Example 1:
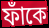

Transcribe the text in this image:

ফাঁকে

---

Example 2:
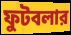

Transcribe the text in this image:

ফুটবলার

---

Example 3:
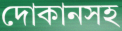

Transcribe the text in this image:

দোকানসহ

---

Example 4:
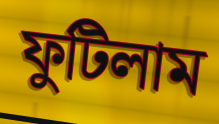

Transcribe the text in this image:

ফুটিলাম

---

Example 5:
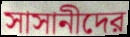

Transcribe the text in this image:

সাসানীদের